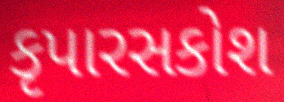
કૃપારસકોશ